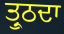
ਤ੍ਰੁਠਦਾ